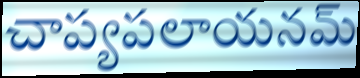
చాప్యపలాయనమ్